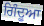
ਗਿੰਦੂਆ